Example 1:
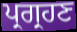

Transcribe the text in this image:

ਪ੍ਰਗ੍ਰਹਣ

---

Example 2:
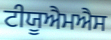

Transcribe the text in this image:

ਟੀਯੂਐਮਐਸ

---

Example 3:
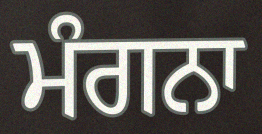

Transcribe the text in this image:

ਮੰਗਨਾ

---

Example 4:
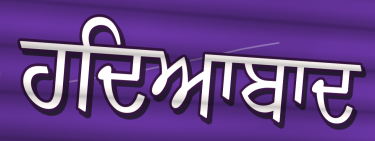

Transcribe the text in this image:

ਹਦਿਆਬਾਦ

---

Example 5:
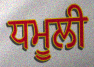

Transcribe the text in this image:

ਧਮੂਲੀ